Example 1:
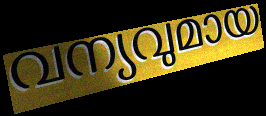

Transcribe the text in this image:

വന്യവുമായ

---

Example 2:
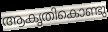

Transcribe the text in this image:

ആകൃതികൊണ്ടു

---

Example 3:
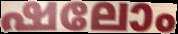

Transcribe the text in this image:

ഷലോം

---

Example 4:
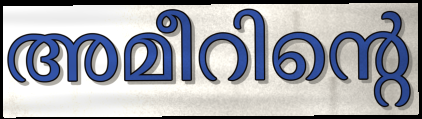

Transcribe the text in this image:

അമീറിന്റെ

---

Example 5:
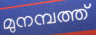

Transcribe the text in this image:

മുനമ്പത്ത്